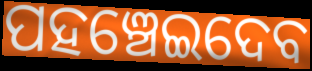
ପହଞ୍ଚେଇଦେବ